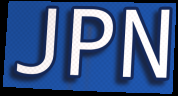
JPN